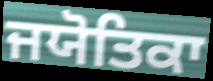
ਜਯੋਤਿਕਾ